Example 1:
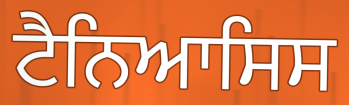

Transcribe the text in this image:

ਟੈਨਿਆਸਿਸ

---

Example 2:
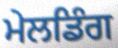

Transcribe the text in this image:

ਮੇਲਡਿੰਗ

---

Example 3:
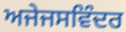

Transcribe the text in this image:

ਅਜੇਜਸਵਿੰਦਰ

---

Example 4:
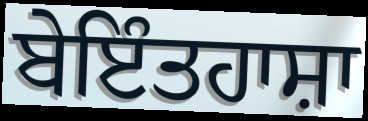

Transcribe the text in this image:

ਬੇਇੰਤਹਾਸ਼ਾ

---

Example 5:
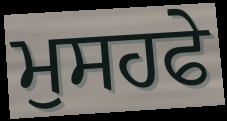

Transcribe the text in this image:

ਮੁਸਹਫੇ